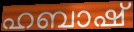
ഹബാഷ്